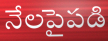
నేలపైపడి